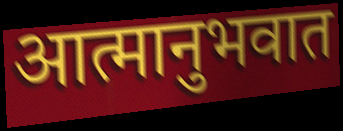
आत्मानुभवात